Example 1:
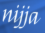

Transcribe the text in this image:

nijja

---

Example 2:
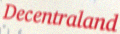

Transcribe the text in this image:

Decentraland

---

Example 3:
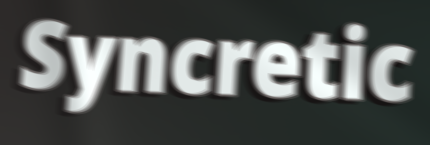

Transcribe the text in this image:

Syncretic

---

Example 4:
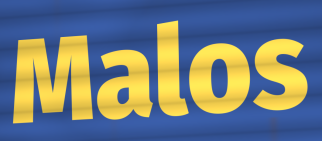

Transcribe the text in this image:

Malos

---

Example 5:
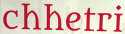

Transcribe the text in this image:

chhetri